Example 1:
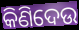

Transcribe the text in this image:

କିଣିଦେଉ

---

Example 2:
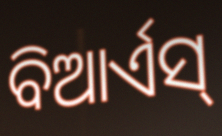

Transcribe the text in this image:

ବିଆର୍ଏସ୍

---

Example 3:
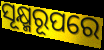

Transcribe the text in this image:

ସୂକ୍ଷ୍ମରୂପରେ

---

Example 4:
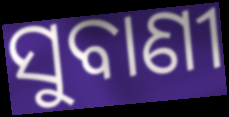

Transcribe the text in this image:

ସୁବାଣୀ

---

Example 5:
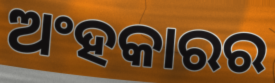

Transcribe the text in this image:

ଅଂହକାରର